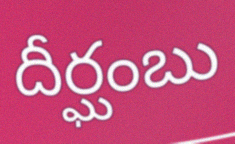
దీర్ఘంబు